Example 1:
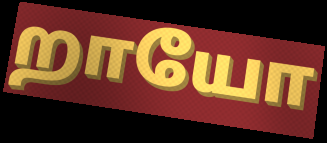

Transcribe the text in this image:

றாயோ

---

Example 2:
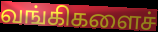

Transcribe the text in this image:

வங்கிகளைச்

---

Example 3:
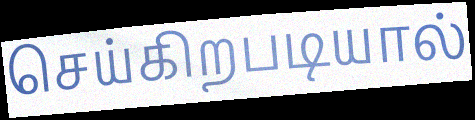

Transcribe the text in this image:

செய்கிறபடியால்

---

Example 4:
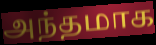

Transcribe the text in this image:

அந்தமாக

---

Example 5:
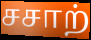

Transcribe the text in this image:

சசாற்